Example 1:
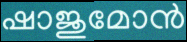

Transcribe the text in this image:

ഷാജുമോൻ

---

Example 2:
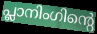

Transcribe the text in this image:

പ്ലാനിംഗിന്റെ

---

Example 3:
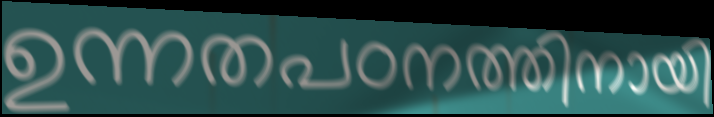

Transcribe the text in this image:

ഉന്നതപഠനത്തിനായി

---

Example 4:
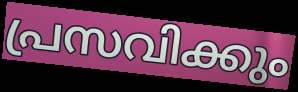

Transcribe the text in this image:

പ്രസവിക്കും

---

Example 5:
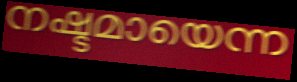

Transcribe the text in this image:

നഷ്ടമായെന്ന